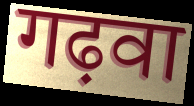
गढ़वा